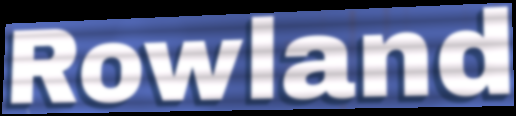
Rowland